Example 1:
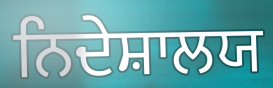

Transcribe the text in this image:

ਨਿਦੇਸ਼ਾਲਯ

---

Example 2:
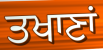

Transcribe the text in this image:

ਤਖਾਣਾਂ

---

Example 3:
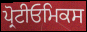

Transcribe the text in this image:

ਪ੍ਰੋਟੀਓਮਿਕਸ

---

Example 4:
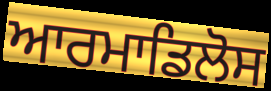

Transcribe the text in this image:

ਆਰਮਾਡਿਲੋਸ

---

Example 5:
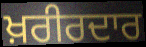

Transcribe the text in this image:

ਖ਼ਰੀਰਦਾਰ